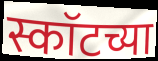
स्कॉटच्या